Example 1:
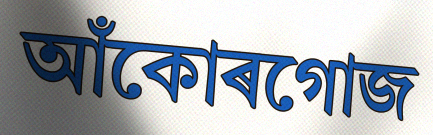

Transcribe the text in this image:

আঁকোৰগোজ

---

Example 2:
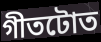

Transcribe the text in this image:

গীতটোত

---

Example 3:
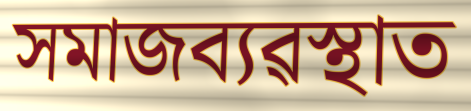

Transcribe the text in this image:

সমাজব্যৱস্থাত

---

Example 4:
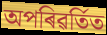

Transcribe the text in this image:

অপৰিৱৰ্তিত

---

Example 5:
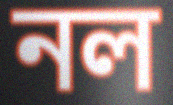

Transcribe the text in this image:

নল